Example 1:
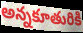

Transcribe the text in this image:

అన్నకూతురికి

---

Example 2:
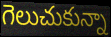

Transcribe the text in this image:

గెలుచుకున్నా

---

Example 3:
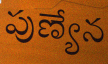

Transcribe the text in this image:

పుణ్యేన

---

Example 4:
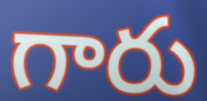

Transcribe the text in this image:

గారు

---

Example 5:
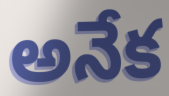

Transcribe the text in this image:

అనేక